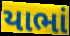
યાભાં